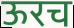
ऊरच